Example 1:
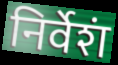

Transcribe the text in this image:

निर्वेशं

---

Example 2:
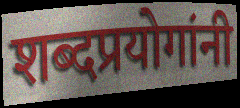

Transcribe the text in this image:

शब्दप्रयोगांनी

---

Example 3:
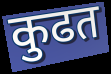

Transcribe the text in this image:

कुढत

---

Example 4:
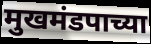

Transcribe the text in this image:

मुखमंडपाच्या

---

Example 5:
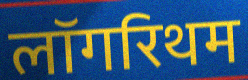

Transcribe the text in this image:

लॉगरिथम